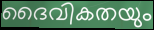
ദൈവികതയും